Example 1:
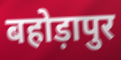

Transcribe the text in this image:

बहोड़ापुर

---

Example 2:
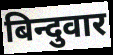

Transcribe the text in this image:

बिन्दुवार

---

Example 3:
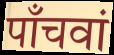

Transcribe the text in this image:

पाँचवां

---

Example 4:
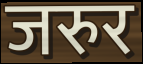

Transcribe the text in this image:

जरुर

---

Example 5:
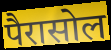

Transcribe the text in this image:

पैरासोल